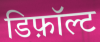
डिफ़ॉल्ट